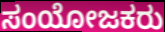
ಸಂಯೋಜಕರು